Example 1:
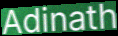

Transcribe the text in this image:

Adinath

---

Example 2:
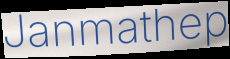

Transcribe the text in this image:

Janmathep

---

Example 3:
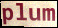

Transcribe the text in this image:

plum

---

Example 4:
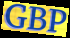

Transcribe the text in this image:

GBP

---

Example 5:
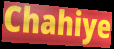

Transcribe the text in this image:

Chahiye